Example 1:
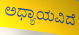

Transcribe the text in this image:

ಅಧ್ಯಾಯವಿದೆ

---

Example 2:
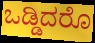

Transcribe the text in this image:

ಒಡ್ಡಿದರೊ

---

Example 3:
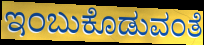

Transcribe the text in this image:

ಇಂಬುಕೊಡುವಂತೆ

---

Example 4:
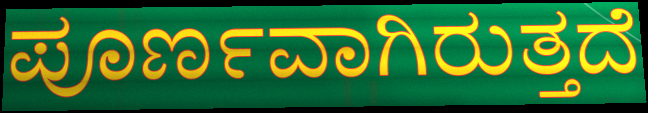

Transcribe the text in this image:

ಪೂರ್ಣವಾಗಿರುತ್ತದೆ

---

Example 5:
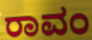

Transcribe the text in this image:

ರಾವಂ